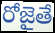
రోజైతే